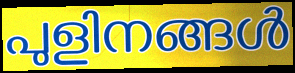
പുളിനങ്ങൾ